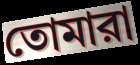
তোমারা